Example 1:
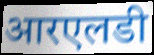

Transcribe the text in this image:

आरएलडी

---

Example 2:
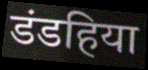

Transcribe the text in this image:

डंडहिया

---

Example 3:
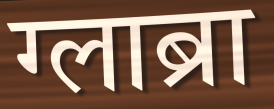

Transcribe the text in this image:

ग्लाब्रा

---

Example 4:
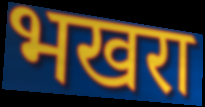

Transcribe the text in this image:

भखरा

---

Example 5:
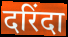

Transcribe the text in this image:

दरिंदा